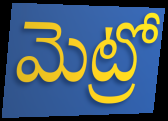
మెట్రో